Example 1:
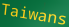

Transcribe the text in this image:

Taiwans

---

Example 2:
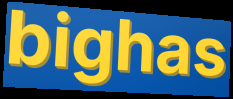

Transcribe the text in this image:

bighas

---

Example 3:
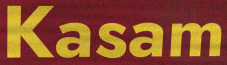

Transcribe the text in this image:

Kasam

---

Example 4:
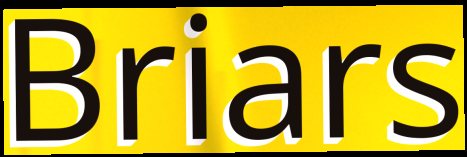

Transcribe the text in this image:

Briars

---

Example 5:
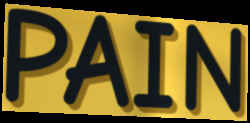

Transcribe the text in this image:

PAIN